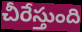
చీరేస్తుంది